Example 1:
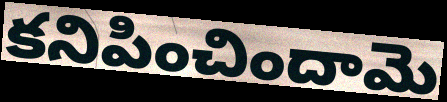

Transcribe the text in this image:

కనిపించిందామె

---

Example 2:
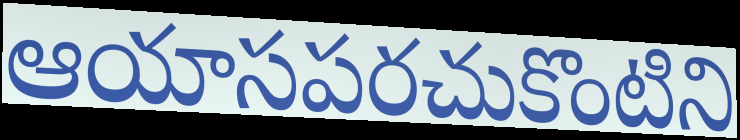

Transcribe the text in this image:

ఆయాసపరచుకొంటిని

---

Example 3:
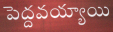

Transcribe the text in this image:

పెద్దవయ్యాయి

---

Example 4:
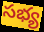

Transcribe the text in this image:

సభ్య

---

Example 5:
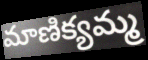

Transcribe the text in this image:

మాణిక్యమ్మ